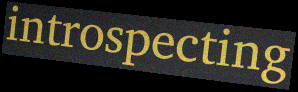
introspecting